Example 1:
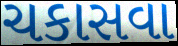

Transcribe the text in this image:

ચકાસવા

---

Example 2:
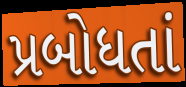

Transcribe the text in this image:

પ્રબોધતાં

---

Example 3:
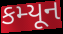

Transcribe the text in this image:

કમ્યૂન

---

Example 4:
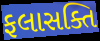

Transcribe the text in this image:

ફલાસક્તિ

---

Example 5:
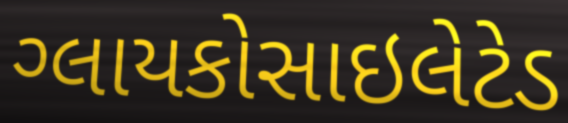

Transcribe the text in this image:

ગ્લાયકોસાઇલેટેડ